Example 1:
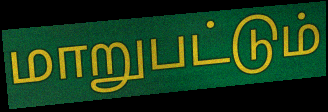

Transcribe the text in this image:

மாறுபட்டும்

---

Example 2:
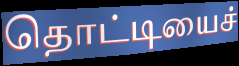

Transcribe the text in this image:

தொட்டியைச்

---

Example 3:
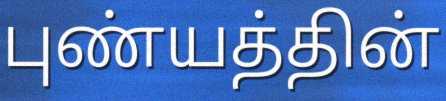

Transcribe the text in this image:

புண்யத்தின்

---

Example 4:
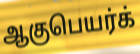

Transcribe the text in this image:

ஆகுபெயர்க்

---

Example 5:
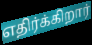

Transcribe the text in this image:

எதிர்க்கிறார்